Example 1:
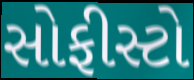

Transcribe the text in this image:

સોફીસ્ટો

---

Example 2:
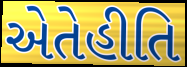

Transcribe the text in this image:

એતેહીતિ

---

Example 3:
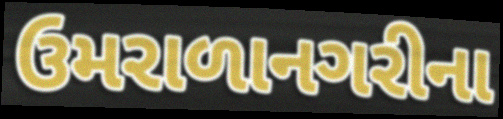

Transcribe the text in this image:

ઉમરાળાનગરીના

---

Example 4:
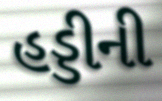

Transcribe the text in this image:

હડ્ડીની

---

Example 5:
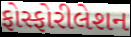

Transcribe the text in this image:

ફોસ્ફોરીલેશન